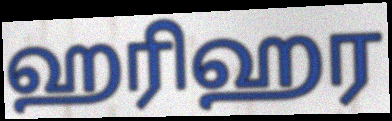
ஹரிஹர